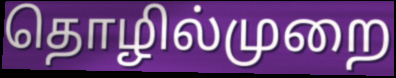
தொழில்முறை